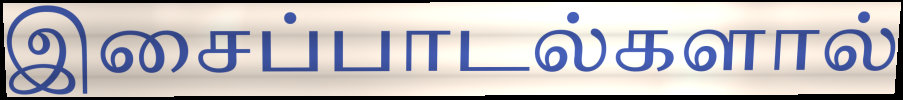
இசைப்பாடல்களால்